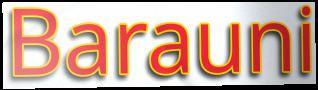
Barauni